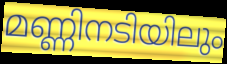
മണ്ണിനടിയിലും